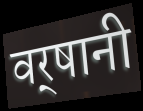
वर्षानी